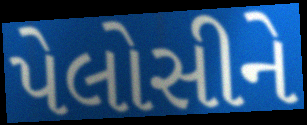
પેલોસીને